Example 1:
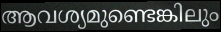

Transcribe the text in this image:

ആവശ്യമുണ്ടെങ്കിലും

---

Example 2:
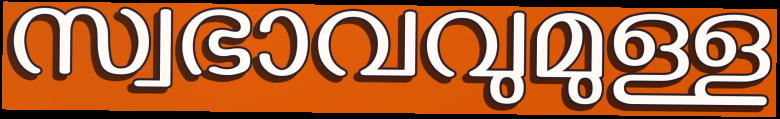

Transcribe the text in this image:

സ്വഭാവവുമുള്ള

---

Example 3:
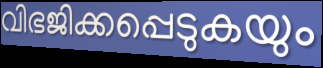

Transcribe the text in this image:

വിഭജിക്കപ്പെടുകയും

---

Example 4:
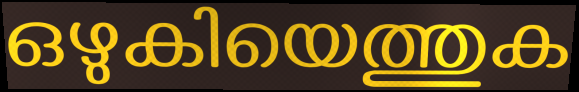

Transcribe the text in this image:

ഒഴുകിയെത്തുക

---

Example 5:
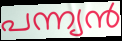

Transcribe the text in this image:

പന്ന്യൻ